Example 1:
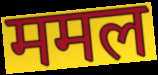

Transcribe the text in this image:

ममल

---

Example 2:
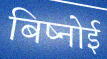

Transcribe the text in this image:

बिष्नोई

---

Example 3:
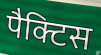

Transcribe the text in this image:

पैक्टिस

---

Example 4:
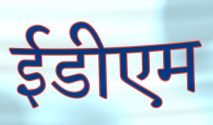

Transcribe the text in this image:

ईडीएम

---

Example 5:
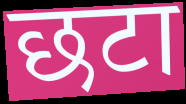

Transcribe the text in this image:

छटा